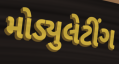
મોડ્યુલેટીંગ